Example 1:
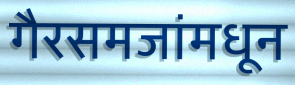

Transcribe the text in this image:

गैरसमजांमधून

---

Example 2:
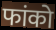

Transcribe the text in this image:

फांको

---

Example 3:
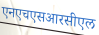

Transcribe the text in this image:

एनएचएसआरसीएल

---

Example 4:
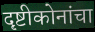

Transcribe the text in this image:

दृष्टीकोनांचा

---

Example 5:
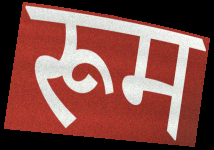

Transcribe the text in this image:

रूम